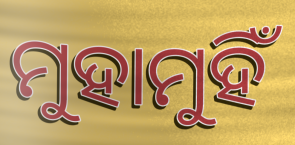
ମୁହାମୁହିଁ